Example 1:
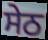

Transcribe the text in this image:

ਸੇਠ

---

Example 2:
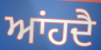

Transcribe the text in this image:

ਆਂਹਦੈ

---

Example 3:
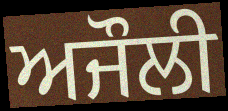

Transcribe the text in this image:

ਅਜੌਲੀ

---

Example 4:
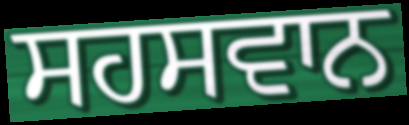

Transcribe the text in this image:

ਸਹਸਵਾਨ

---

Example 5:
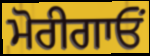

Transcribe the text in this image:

ਮੋਰੀਗਾਓਂ